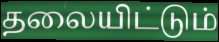
தலையிட்டும்